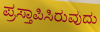
ಪ್ರಸ್ತಾಪಿಸಿರುವುದು